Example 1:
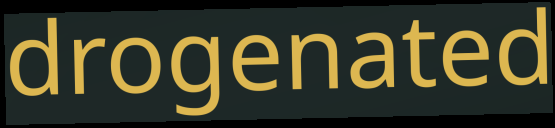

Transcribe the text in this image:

drogenated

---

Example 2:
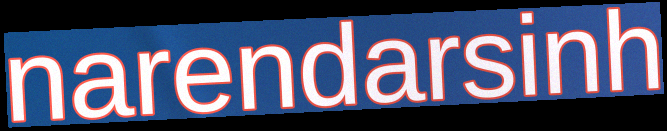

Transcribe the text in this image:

narendarsinh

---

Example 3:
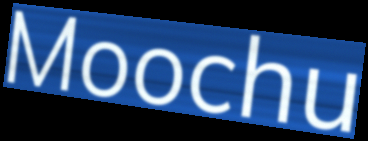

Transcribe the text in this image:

Moochu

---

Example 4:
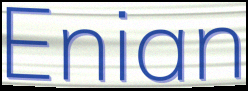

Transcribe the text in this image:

Enian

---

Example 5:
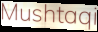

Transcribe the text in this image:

Mushtaqi